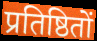
प्रतिष्ठितों